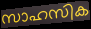
സാഹസിക